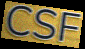
CSF